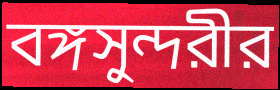
বঙ্গসুন্দরীর